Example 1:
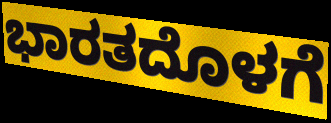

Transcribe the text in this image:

ಭಾರತದೊಳಗೆ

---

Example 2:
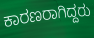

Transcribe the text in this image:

ಕಾರಣರಾಗಿದ್ದರು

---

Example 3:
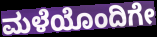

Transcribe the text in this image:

ಮಳೆಯೊಂದಿಗೇ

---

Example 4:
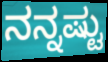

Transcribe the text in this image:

ನನ್ನಷ್ಟು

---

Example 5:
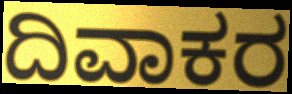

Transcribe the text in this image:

ದಿವಾಕರ